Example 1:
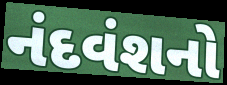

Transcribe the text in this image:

નંદવંશનો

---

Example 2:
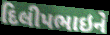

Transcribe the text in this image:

દિલીપભાઇને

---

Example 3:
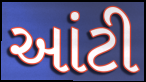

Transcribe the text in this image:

આંટી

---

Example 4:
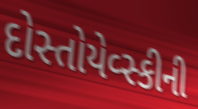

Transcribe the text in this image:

દોસ્તોયેવ્સ્કીની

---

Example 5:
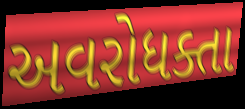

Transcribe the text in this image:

અવરોધક્તા